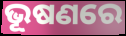
ଭୂଷଣରେ